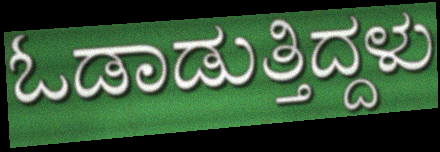
ಓಡಾಡುತ್ತಿದ್ದಳು